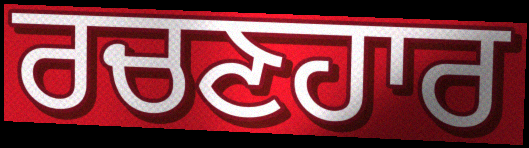
ਰਚਣਹਾਰ